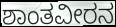
ಶಾಂತವೀರನ